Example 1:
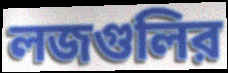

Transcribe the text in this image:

লজগুলির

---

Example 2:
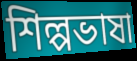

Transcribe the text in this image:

শিল্পভাষা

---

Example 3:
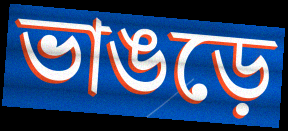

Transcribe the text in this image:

ভাঙড়ে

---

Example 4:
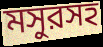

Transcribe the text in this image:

মসুরসহ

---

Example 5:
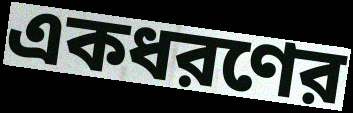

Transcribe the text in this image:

একধরণের